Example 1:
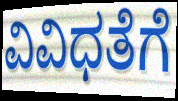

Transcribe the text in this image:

ವಿವಿಧತೆಗೆ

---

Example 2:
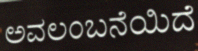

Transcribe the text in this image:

ಅವಲಂಬನೆಯಿದೆ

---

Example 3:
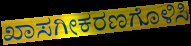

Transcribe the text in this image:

ಖಾಸಗೀಕರಣಗೊಳಿಸಿ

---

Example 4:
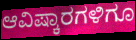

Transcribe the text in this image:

ಆವಿಷ್ಕಾರಗಳಿಗೂ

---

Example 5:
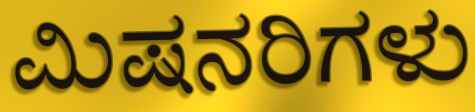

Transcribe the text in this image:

ಮಿಷನರಿಗಳು